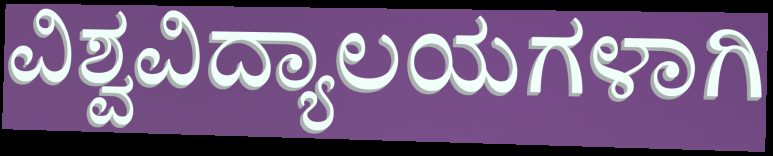
ವಿಶ್ವವಿದ್ಯಾಲಯಗಳಾಗಿ